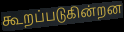
கூறப்படுகின்றன